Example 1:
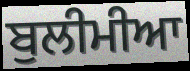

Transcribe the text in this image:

ਬੁਲੀਮੀਆ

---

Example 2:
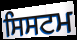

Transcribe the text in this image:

ਸਿਸਟਮ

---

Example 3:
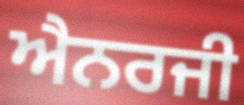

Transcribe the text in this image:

ਐਨਰਜੀ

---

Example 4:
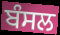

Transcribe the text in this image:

ਬੰਸਲ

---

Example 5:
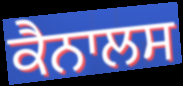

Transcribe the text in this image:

ਕੈਨਾਲਸ